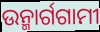
ଉନ୍ମାର୍ଗଗାମୀ